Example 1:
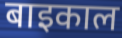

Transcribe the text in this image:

बाइकाल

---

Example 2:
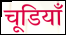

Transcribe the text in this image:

चूडियाँ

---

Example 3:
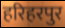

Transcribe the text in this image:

हरिहरपुर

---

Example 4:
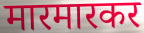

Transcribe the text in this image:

मारमारकर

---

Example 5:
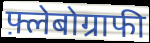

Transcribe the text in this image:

फ़्लेबोग्राफी